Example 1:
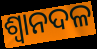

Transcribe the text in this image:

ଶ୍ୱାନଦଳ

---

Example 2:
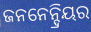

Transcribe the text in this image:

ଜନନେନ୍ଦ୍ରିୟର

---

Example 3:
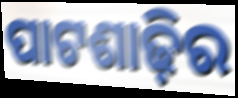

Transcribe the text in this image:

ପାଟଶାଢ଼ିର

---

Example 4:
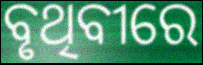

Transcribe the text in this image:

ବୃଥିବୀରେ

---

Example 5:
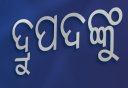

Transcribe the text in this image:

ଦ୍ରୁପଦଙ୍କୁ